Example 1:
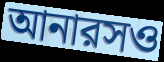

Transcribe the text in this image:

আনারসও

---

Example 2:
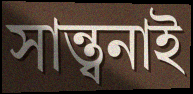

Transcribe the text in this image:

সান্ত্বনাই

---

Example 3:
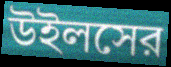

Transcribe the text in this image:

উইলসের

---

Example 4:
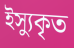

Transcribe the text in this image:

ইস্যুকৃত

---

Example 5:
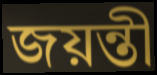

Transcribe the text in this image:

জয়ন্তী